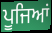
ਪੂਜਿਆਂ